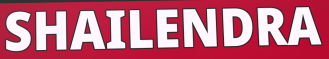
SHAILENDRA